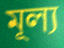
মূল্য